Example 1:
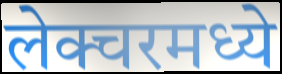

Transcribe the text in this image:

लेक्चरमध्ये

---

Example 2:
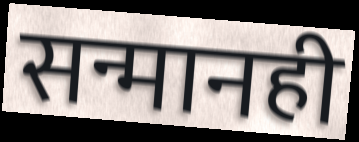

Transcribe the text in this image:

सन्मानही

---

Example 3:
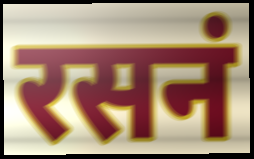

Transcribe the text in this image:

रसनं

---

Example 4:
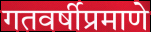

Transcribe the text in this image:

गतवर्षीप्रमाणे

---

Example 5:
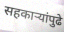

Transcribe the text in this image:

सहकाऱ्यांपुढे